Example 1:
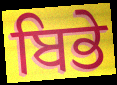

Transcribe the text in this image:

ਬਿਭੇ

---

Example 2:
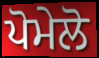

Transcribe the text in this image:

ਪੋਮੇਲੋ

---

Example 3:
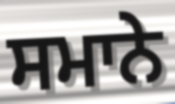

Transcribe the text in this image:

ਸਮਾਨੇ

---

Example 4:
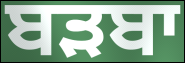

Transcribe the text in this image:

ਬੜਬਾ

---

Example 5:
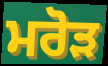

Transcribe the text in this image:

ਮਰੋੜ